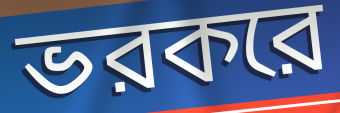
ভরকরে